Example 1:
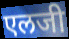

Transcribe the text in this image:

एलजी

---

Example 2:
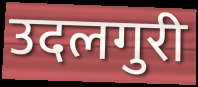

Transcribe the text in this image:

उदलगुरी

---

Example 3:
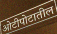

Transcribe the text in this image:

ओटीपोटातील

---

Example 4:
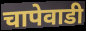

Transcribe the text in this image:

चापेवाडी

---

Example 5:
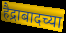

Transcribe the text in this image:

हैद्राबादच्या